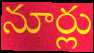
నూర్లు